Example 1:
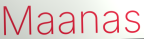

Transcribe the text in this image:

Maanas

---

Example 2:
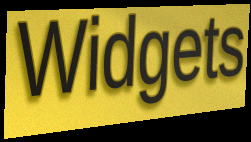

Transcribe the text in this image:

Widgets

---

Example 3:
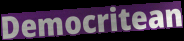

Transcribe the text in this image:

Democritean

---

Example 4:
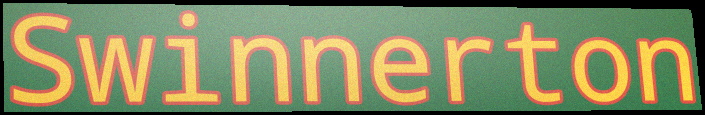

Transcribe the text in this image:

Swinnerton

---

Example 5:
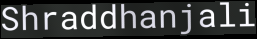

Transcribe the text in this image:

Shraddhanjali